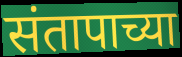
संतापाच्या